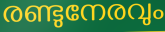
രണ്ടുനേരവും